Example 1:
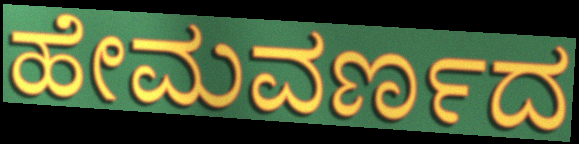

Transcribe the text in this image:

ಹೇಮವರ್ಣದ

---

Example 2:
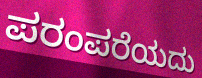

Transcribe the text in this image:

ಪರಂಪರೆಯದು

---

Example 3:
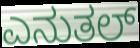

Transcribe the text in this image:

ಎನುತಲ್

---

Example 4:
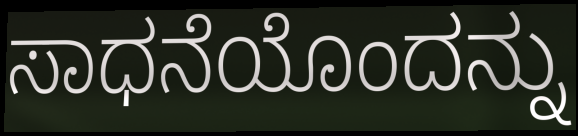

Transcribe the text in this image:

ಸಾಧನೆಯೊಂದನ್ನು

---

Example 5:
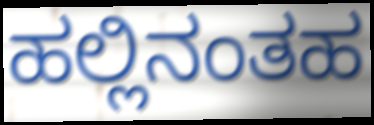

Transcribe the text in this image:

ಹಲ್ಲಿನಂತಹ